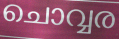
ചൊവ്വര